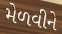
મેળવીને